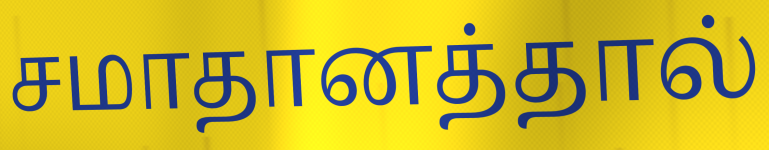
சமாதானத்தால்